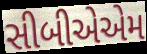
સીબીએએમ